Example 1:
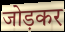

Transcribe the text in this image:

जोड़कर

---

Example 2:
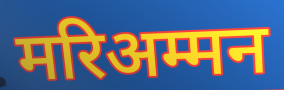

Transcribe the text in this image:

मरिअम्मन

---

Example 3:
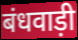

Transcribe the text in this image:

बंधवाड़ी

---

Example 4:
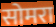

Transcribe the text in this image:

सोमरा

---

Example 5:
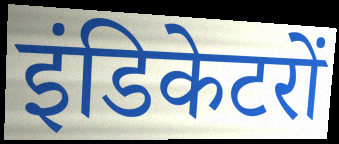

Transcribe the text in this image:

इंडिकेटरों